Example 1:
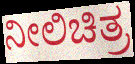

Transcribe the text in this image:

ನೀಲಿಚಿತ್ರ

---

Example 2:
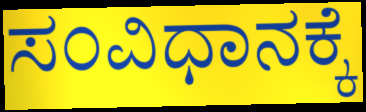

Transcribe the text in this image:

ಸಂವಿಧಾನಕ್ಕೆ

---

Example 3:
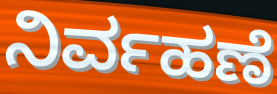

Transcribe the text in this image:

ನಿರ್ವಹಣೆ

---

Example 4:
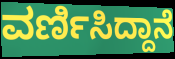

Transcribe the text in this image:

ವರ್ಣಿಸಿದ್ದಾನೆ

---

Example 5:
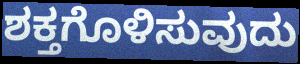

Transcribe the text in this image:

ಶಕ್ತಗೊಳಿಸುವುದು